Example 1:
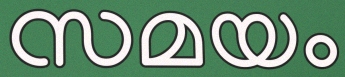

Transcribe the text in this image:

സമയം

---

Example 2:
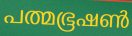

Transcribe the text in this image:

പത്മഭൂഷൺ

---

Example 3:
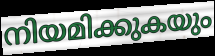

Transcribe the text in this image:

നിയമിക്കുകയും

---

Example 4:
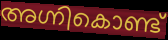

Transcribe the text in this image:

അഗ്നികൊണ്ട്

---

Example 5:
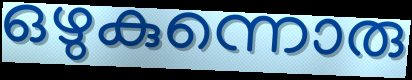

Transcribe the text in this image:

ഒഴുകുന്നൊരു